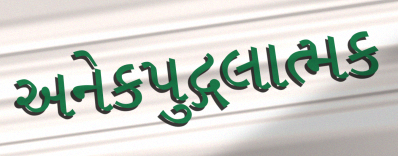
અનેકપુદ્ગલાત્મક